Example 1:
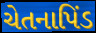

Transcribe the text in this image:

ચેતનાપિંડ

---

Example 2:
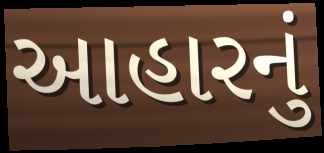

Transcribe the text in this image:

આહારનું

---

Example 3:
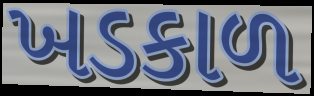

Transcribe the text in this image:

ખડકાળ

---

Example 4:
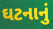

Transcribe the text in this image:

ઘટનાનું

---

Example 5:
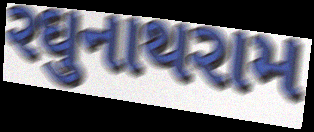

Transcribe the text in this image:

રઘુનાથરામ